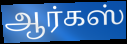
ஆர்கஸ்